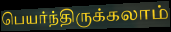
பெயர்ந்திருக்கலாம்